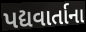
પદ્યવાર્તાના